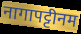
नागापट्टीनम